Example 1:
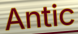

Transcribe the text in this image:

Antic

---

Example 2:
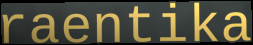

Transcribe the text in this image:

raentika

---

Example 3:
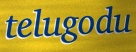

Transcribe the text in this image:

telugodu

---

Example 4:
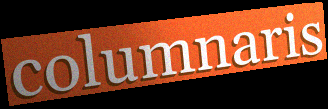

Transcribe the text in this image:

columnaris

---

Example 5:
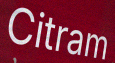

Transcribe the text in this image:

Citram